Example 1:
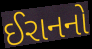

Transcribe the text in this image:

ઈરાનનો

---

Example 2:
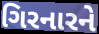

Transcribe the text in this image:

ગિરનારને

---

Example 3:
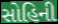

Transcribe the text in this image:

સોહિની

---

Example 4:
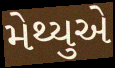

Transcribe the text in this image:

મેથ્યુએ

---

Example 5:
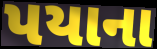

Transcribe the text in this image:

પયાના